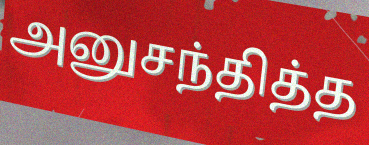
அனுசந்தித்த